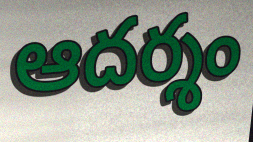
ఆదర్శం